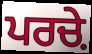
ਪਰਚ਼ੇ